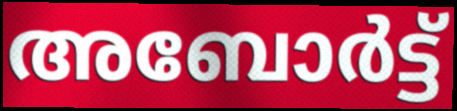
അബോർട്ട്